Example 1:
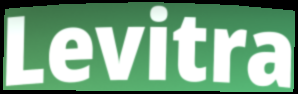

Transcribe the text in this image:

Levitra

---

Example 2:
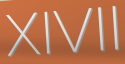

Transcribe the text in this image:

XIVII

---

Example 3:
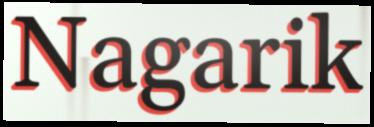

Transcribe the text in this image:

Nagarik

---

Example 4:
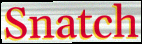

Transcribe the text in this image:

Snatch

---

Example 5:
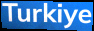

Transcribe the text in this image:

Turkiye